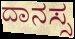
ದಾನಸ್ಸ